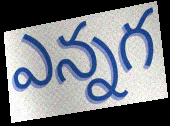
ఎన్నగ